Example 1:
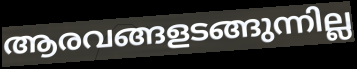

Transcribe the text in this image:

ആരവങ്ങളടങ്ങുന്നില്ല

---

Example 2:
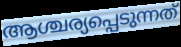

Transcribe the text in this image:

ആശ്ചര്യപ്പെടുന്നത്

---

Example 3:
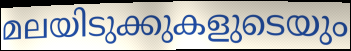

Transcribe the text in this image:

മലയിടുക്കുകളുടെയും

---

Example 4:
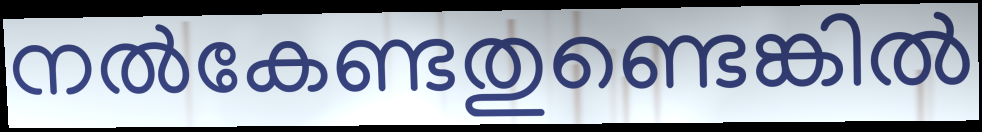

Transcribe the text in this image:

നൽകേണ്ടതുണ്ടെങ്കിൽ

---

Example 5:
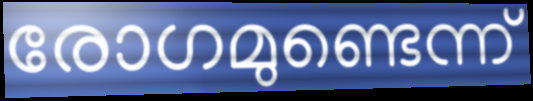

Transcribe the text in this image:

രോഗമുണ്ടെന്ന്